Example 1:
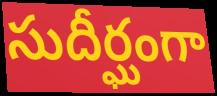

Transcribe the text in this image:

సుదీర్ఘంగా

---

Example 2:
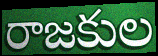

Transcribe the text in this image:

రాజకుల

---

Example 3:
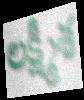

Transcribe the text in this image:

లక్ష్మీశ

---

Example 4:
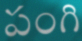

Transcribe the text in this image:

పంగి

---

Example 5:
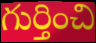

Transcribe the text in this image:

గుర్తించి